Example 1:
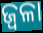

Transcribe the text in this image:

ଜ୍ଵଳା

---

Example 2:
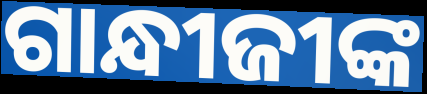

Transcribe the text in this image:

ଗାନ୍ଧୀଜୀଙ୍କ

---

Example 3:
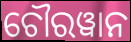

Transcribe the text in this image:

ଚୌରୱାନ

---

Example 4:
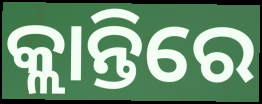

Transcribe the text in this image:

କ୍ଲାନ୍ତିରେ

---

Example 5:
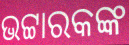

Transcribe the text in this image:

ଭଟ୍ଟାରକଙ୍କ